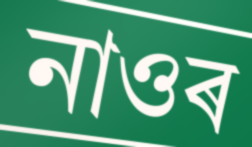
নাওৰ